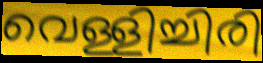
വെള്ളിച്ചിരി